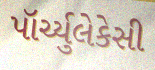
પૉર્ચ્યુલેકેસી